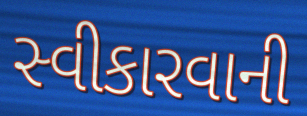
સ્વીકારવાની